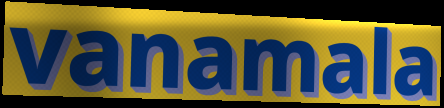
vanamala